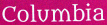
Columbia